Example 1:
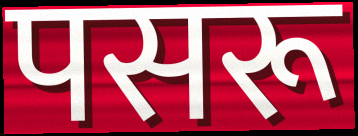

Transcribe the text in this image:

पसरू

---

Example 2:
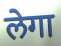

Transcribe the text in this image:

लेगा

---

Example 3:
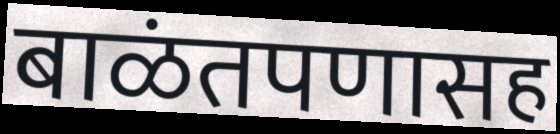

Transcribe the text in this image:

बाळंतपणासह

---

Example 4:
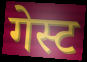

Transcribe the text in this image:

गेस्ट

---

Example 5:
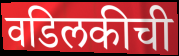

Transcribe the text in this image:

वडिलकीची